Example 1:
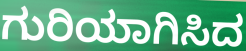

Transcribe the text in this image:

ಗುರಿಯಾಗಿಸಿದ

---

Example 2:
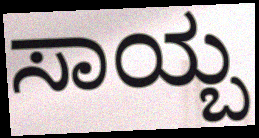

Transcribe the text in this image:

ಸಾಯ್ಬ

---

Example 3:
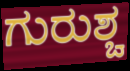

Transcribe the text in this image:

ಗುರುಶ್ಚ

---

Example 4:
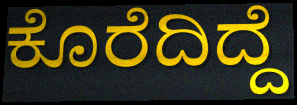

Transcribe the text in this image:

ಕೊರೆದಿದ್ದೆ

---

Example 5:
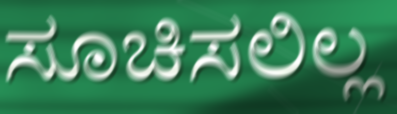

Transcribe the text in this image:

ಸೂಚಿಸಲಿಲ್ಲ